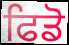
ਫਿਡੋ